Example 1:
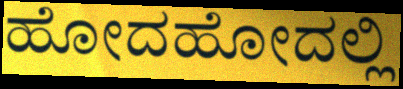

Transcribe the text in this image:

ಹೋದಹೋದಲ್ಲಿ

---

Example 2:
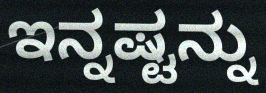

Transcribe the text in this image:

ಇನ್ನಷ್ಟನ್ನು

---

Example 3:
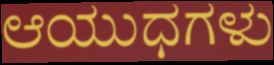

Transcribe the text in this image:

ಆಯುಧಗಳು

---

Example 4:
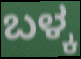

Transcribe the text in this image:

ಬಳ್ಕ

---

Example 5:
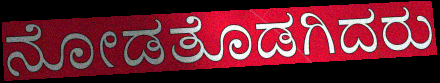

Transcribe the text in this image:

ನೋಡತೊಡಗಿದರು